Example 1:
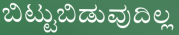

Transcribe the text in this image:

ಬಿಟ್ಟುಬಿಡುವುದಿಲ್ಲ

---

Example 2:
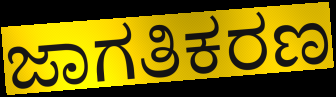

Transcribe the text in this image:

ಜಾಗತಿಕರಣ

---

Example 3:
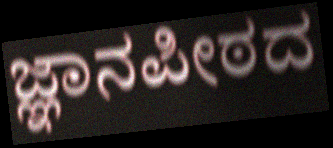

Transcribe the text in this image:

ಜ್ಞಾನಪೀಠದ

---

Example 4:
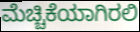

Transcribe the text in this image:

ಮೆಚ್ಚಿಕೆಯಾಗಿರಲಿ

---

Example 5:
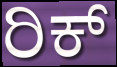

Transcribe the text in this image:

ರಿಕ್